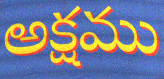
అక్షము